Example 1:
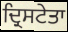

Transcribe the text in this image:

ਦ੍ਰਿਸਟੇਤਾ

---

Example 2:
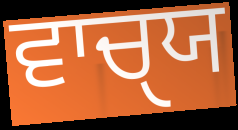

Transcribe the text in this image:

ਵਾਚੑਯ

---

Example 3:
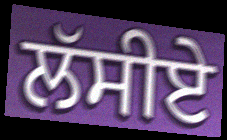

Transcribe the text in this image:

ਲੱਸੀਏ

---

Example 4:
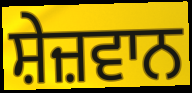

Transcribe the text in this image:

ਸ਼ੇਜ਼ਵਾਨ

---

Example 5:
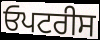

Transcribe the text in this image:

ਓਪਟਰੀਸ